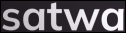
satwa